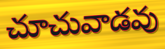
చూచువాడవు